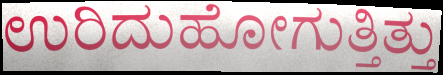
ಉರಿದುಹೋಗುತ್ತಿತ್ತು